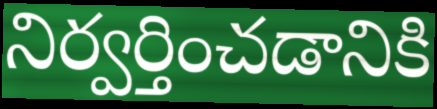
నిర్వర్తించడానికి